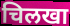
चिलखा